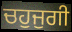
ਚਹੁਜੁਗੀ